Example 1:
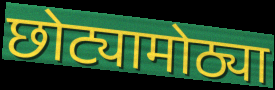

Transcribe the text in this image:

छोट्यामोठ्या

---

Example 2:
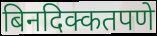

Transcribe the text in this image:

बिनदिक्कतपणे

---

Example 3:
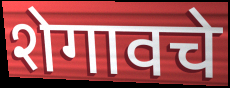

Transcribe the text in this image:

शेगावचे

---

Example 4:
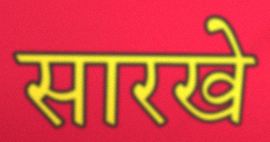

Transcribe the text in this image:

सारखे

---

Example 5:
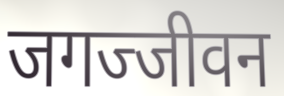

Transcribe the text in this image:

जगज्जीवन